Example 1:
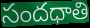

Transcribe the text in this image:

సందధాతి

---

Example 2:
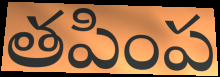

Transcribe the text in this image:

తపింప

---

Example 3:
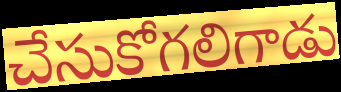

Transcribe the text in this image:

చేసుకోగలిగాడు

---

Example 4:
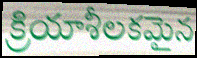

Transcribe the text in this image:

క్రియాశీలకమైన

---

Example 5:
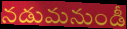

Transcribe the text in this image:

నడుమనుండీ